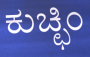
ಕುಚ್ಛಿಂ